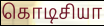
கொடிசியா